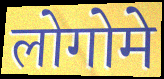
लोगोमे